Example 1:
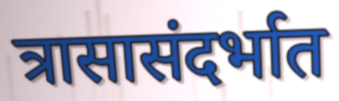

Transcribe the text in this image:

त्रासासंदर्भात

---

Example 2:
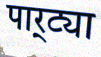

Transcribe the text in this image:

पार्ट्या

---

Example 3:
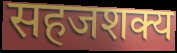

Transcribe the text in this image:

सहजशक्य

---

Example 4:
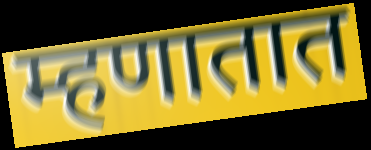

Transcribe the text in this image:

म्हणातात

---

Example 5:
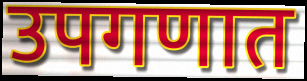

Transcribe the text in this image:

उपगणात